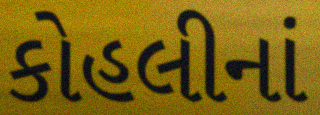
કોહલીનાં